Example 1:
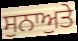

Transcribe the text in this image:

ਸੁਨਾਅੁਤੇ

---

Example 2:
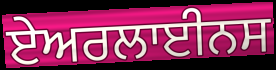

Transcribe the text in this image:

ਏਅਰਲਾਈਨਸ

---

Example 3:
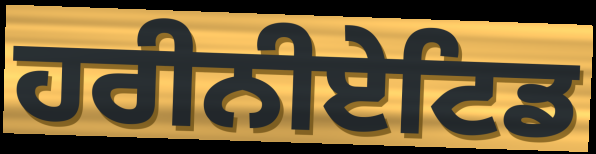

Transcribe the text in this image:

ਹਰੀਨੀਏਟਿਡ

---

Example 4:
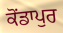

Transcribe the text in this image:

ਕੋਂਡਾਪੁਰ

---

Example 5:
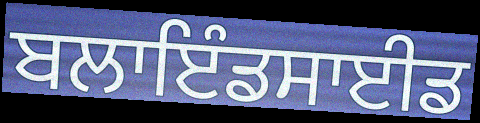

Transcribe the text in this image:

ਬਲਾਇੰਡਸਾਈਡ